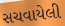
સચવાયેલી